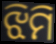
ଝିମି